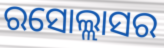
ରସୋଲ୍ଲାସର